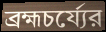
ব্রহ্মচর্য্যের